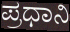
ಪ್ರಧಾನಿ